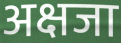
अक्षजा